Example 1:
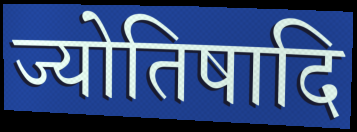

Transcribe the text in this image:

ज्योतिषादि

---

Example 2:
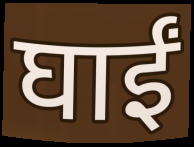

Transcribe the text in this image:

घाईं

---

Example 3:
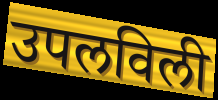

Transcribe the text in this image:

उपलविली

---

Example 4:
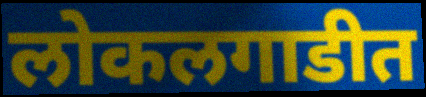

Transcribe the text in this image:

लोकलगाडीत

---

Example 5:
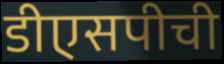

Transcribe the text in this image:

डीएसपीची